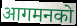
आगमनको